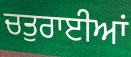
ਚਤੁਰਾਈਆਂ